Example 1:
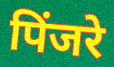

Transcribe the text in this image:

पिंजरे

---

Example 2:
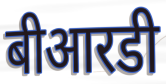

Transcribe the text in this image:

बीआरडी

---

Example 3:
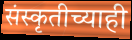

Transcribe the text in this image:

संस्कृतीच्याही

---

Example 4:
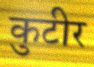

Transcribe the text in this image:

कुटीर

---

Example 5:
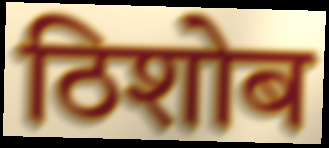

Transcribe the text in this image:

ठिशोब